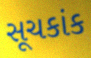
સૂચકાંક